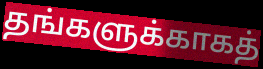
தங்களுக்காகத்